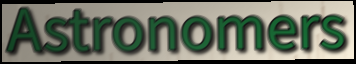
Astronomers